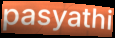
pasyathi